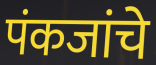
पंकजांचे